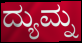
ದ್ಯುಮ್ನ